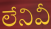
లేనివీ